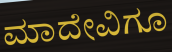
ಮಾದೇವಿಗೂ